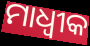
ମାଧ୍ୱୀକ